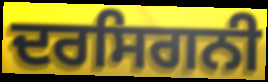
ਦਰਸਿਗਨੀ